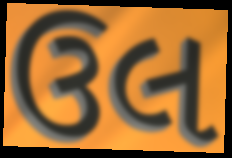
ઉલ